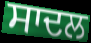
ਸਾਦਲ